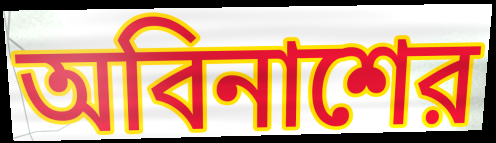
অবিনাশের